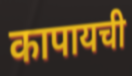
कापायची